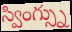
స్వింగ్స్ను